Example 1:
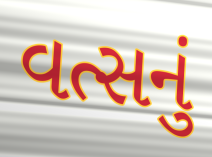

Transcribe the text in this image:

વત્સનું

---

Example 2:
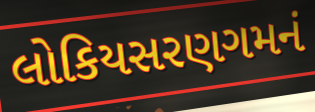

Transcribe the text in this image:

લોકિયસરણગમનં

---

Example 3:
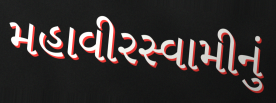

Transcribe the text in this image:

મહાવીરસ્વામીનું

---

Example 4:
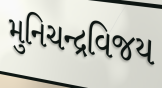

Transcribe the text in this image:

મુનિચન્દ્રવિજય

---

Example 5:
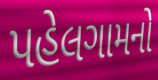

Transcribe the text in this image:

પહેલગામનો